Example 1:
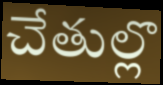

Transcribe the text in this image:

చేతుల్లొ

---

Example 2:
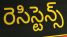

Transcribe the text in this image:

రెసిస్టెన్స్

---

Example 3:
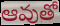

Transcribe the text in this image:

ఆవుతో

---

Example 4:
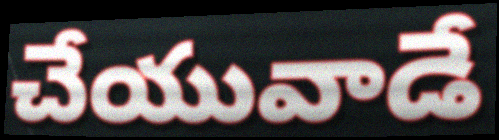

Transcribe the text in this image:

చేయువాడే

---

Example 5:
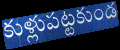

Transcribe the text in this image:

కుళ్లుపట్టకుండ